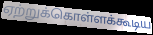
ஏற்றுக்கொள்ளக்கூடிய